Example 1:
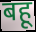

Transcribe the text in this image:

बहू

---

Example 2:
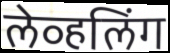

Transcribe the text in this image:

लेव्हलिंग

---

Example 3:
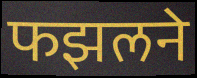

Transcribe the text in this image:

फझलने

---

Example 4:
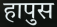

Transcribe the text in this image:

हापुस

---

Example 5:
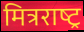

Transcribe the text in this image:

मित्रराष्ट्र